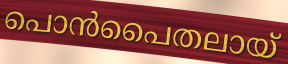
പൊൻപൈതലായ്